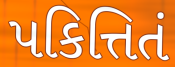
પકિત્તિતં